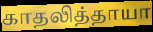
காதலித்தாயா